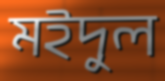
মইদুল